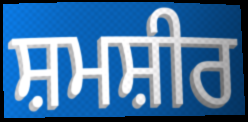
ਸ਼ਮਸ਼ੀਰ